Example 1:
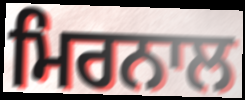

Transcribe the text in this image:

ਮਿਰਨਾਲ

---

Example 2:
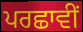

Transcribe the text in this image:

ਪਰਛਾਵੀਂ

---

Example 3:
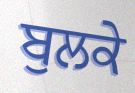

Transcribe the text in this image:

ਬੁਲਕੇ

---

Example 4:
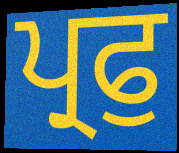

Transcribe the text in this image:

ਪ੍ਰਫੁ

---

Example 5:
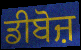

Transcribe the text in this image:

ਡੀਬੋਜ਼